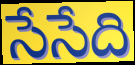
సేసేది